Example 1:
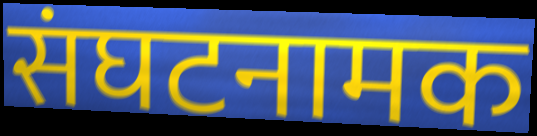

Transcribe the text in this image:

संघटनामक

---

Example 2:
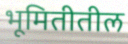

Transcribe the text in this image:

भूमितीतील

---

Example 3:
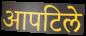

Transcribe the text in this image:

आपटिले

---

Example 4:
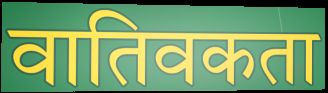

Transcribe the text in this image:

वातिवकता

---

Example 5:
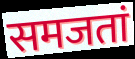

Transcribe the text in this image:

समजतां